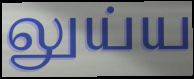
லுய்ய